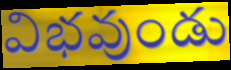
విభవుండు